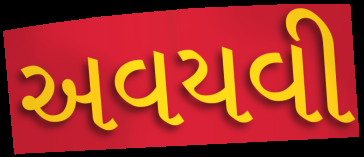
અવયવી